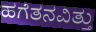
ಹಗೆತನವಿತ್ತು